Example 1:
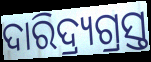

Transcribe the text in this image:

ଦାରିଦ୍ର୍ୟଗ୍ରସ୍ତ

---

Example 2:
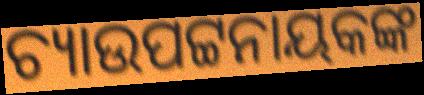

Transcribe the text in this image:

ଚ୍ୟାଉପଟ୍ଟନାୟକଙ୍କ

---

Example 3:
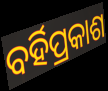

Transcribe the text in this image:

ବର୍ହିପ୍ରକାଶ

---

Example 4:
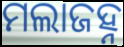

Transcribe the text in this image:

ମଲାଜହ୍ନ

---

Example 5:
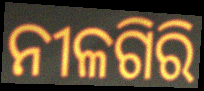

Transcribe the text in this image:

ନୀଳଗିରି